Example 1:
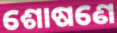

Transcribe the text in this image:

ଶୋଷଣେ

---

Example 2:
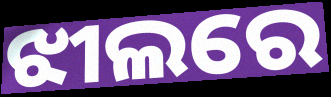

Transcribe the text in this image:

ଝୀଲରେ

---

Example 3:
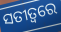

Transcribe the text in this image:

ସତୀତ୍ୱରେ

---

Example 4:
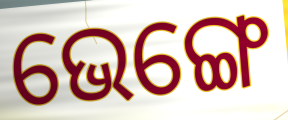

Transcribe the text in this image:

ଭେଙ୍ଗେ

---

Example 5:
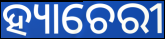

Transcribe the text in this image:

ହ୍ୟାଚେରୀ